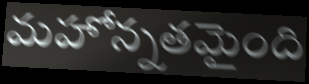
మహోన్నతమైంది